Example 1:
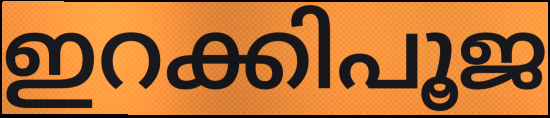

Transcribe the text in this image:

ഇറക്കിപൂജ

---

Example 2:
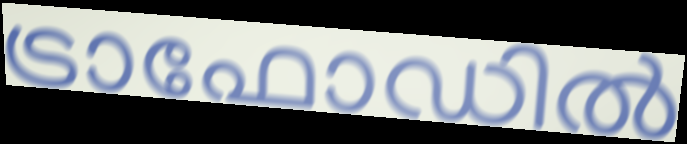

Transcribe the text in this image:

ട്രാഫോഡിൽ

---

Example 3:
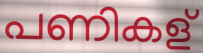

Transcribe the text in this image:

പണികള്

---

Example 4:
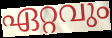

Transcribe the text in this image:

ഏറ്റവും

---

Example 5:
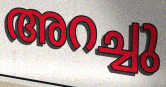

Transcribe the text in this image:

അറച്ചു